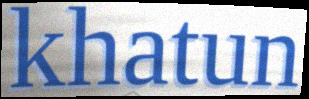
khatun